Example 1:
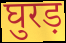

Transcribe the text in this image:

घुरड़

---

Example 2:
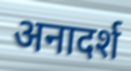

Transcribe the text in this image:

अनादर्श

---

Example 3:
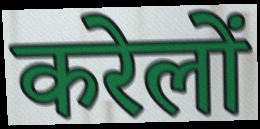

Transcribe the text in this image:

करेलों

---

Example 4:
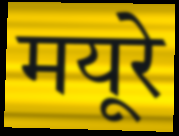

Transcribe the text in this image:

मयूरे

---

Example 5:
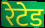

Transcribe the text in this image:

रेटेड